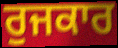
ਰੁਜਕਾਰ